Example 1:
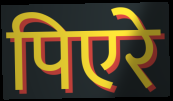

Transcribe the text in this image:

पिएरे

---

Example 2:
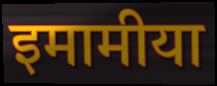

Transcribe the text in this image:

इमामीया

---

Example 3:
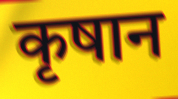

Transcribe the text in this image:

कृषान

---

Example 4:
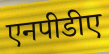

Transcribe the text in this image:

एनपीडीए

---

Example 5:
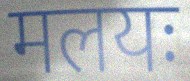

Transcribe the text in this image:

मलयः